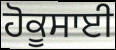
ਹੋਕੂਸਾਈ